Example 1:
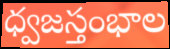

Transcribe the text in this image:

ధ్వజస్తంభాల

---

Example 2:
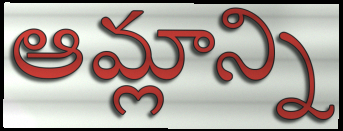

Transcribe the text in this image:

ఆమ్లాన్ని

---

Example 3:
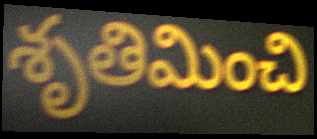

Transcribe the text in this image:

శృతిమించి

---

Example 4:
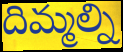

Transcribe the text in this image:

దిమ్మల్ని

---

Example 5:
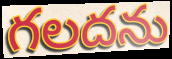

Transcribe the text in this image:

గలదను